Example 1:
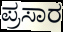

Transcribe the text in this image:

ಪ್ರಸಾರ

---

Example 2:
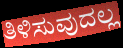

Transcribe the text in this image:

ತಿಳಿಸುವುದಲ್ಲ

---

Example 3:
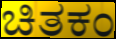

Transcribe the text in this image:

ಚಿತಕಂ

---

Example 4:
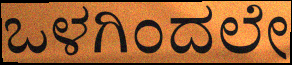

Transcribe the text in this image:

ಒಳಗಿಂದಲೇ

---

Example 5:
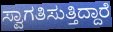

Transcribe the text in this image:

ಸ್ವಾಗತಿಸುತ್ತಿದ್ದಾರೆ